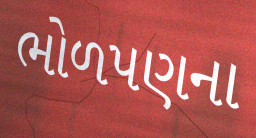
ભોળપણના